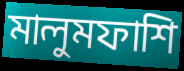
মালুমফাশি